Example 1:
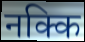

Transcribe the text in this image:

नक्कि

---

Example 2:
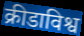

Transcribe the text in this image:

क्रीडाविश्व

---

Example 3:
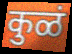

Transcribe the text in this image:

कुळं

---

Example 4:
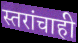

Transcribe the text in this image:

स्तरांचाही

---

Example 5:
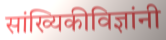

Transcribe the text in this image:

सांख्यिकीविज्ञांनी